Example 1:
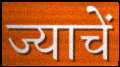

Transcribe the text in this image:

ज्याचें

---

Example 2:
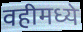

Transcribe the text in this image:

वहीमध्ये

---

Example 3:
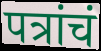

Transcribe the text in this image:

पत्रांचं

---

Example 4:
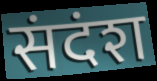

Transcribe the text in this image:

संदंश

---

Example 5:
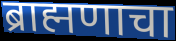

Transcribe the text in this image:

ब्राह्मणाचा